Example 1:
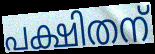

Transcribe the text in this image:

പക്ഷിതന്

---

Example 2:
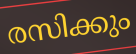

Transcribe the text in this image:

രസിക്കും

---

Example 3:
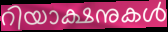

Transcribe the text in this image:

റിയാക്ഷനുകൾ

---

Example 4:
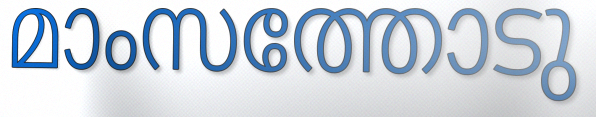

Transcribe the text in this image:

മാംസത്തോടു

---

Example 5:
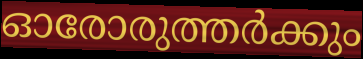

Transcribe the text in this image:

ഓരോരുത്തർക്കും